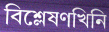
বিশ্লেষণখিনি